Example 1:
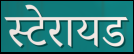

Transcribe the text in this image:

स्टेरायड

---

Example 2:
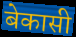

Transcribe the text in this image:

बेकासी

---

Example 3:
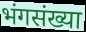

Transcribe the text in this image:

भंगसंख्या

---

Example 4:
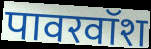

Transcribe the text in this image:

पावरवॉश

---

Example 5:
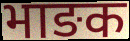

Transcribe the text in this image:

भाङक